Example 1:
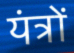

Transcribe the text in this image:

यंत्रों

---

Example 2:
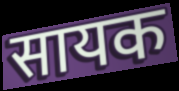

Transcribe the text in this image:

सायक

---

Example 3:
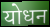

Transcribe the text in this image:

योधन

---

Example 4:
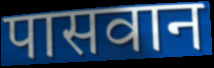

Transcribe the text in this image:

पासवान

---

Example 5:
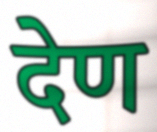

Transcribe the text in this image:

देण